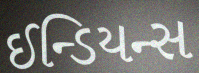
ઈન્ડિયન્સ